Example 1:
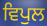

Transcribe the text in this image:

ਵਿਪੁਲ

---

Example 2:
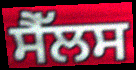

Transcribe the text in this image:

ਸੈੱਲਸ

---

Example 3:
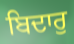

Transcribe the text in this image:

ਬਿਦਾਰੁ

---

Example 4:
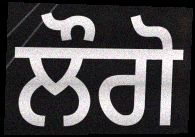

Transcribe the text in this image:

ਲੌਗੋ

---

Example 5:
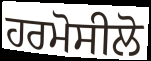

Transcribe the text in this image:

ਹਰਮੋਸੀਲੋ